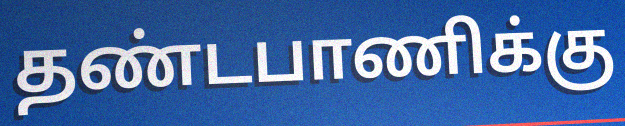
தண்டபாணிக்கு